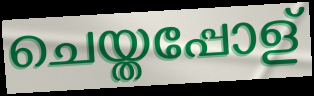
ചെയ്തപ്പോള്